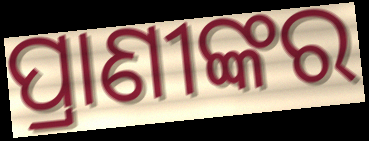
ପ୍ରାଣୀଙ୍କର